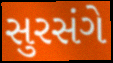
સુરસંગે